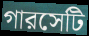
গারসেটি